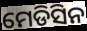
ମେଡିସିନ